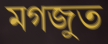
মগজুত